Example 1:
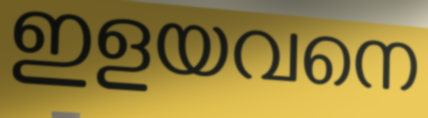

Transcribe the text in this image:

ഇളയവനെ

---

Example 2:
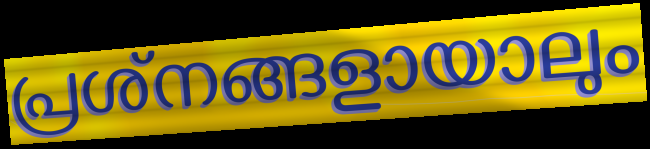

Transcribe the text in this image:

പ്രശ്‌നങ്ങളായാലും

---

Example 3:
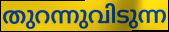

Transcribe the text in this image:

തുറന്നുവിടുന്ന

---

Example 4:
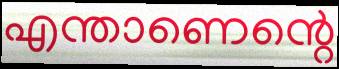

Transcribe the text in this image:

എന്താണെന്റെ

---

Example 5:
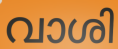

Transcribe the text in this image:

വാശി